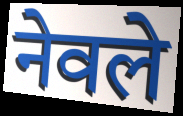
नेवले